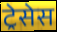
ट्रेसेस